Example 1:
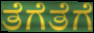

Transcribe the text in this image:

ತೆಗೆತೆಗೆ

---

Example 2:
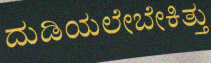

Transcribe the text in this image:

ದುಡಿಯಲೇಬೇಕಿತ್ತು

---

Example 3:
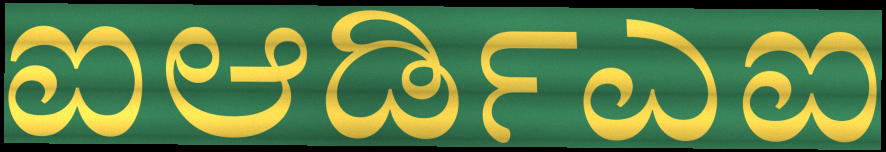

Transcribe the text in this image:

ಐಆರ್ಡಿಎಐ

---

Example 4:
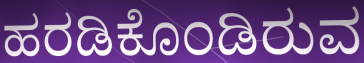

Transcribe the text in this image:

ಹರಡಿಕೊಂಡಿರುವ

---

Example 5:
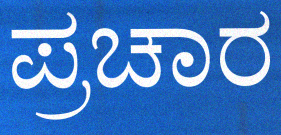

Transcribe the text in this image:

ಪ್ರಚಾರ